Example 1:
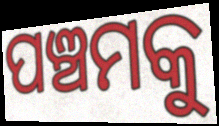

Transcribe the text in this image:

ପଞ୍ଚମକୁ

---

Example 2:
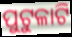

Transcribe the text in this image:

ପୁଟୁଳାଟି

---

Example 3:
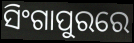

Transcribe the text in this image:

ସିଂଗାପୁରରେ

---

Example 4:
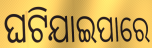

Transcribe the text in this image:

ଘଟିଯାଇପାରେ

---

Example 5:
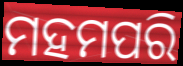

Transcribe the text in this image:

ମହମପରି